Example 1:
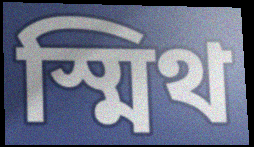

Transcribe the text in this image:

স্মিথ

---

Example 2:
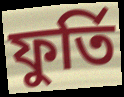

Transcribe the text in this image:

ফুৰ্তি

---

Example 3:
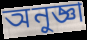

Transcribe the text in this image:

অনুজ্ঞা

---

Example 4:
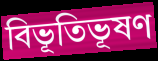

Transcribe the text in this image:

বিভূতিভূষণ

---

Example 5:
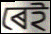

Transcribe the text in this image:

ৰেই